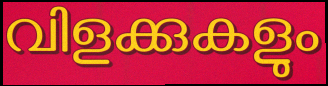
വിളക്കുകളും